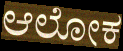
ಆಲೋಕ